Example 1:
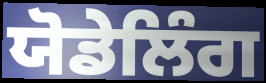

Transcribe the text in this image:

ਯੋਡੇਲਿੰਗ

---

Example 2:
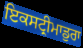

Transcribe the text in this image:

ਇਕਸਟ੍ਰੀਮਾਡੁਰਾ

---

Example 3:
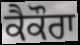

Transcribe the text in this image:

ਕੈਕੌਰਾ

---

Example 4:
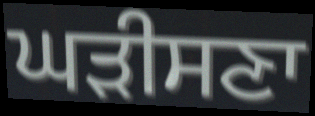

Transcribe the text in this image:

ਘੜੀਸਣਾ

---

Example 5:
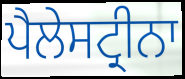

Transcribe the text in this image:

ਪੈਲੇਸਟ੍ਰੀਨਾ